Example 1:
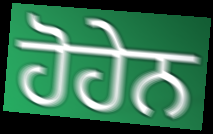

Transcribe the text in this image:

ਹੋਹੇਨ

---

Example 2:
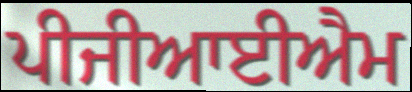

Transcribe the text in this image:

ਪੀਜੀਆਈਐਮ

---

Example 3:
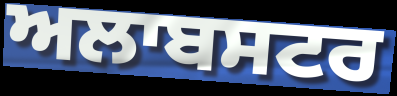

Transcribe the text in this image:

ਅਲਾਬਸਟਰ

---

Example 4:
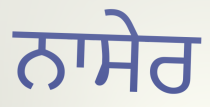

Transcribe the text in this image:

ਨਾਸੇਰ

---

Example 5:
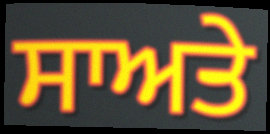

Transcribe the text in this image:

ਸਾਅਤੇ